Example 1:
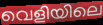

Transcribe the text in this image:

വെളിയിലെ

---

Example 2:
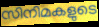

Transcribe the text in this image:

സിനിമകളുടെ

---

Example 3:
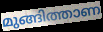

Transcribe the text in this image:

മുങ്ങിത്താണ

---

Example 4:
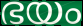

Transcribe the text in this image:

ഭയം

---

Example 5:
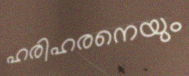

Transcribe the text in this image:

ഹരിഹരനെയും